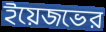
ইয়েজভের